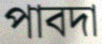
পাবদা